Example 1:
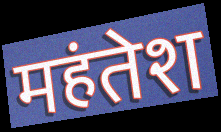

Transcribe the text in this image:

महंतेश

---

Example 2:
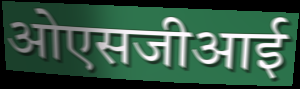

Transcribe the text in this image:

ओएसजीआई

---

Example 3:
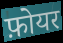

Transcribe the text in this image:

फ़ोयर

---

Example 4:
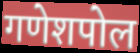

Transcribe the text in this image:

गणेशपोल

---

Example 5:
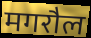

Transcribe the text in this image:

मगरौल